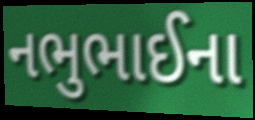
નભુભાઈના